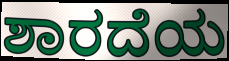
ಶಾರದೆಯ